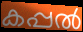
കപ്പൽ